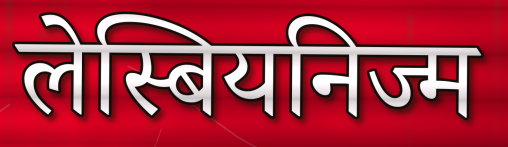
लेस्बियनिज्म